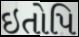
ઇતોપિ